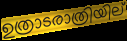
ഉത്രാടരാത്രിയില്